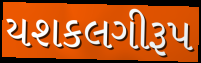
યશકલગીરૂપ